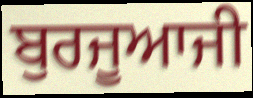
ਬੁਰਜੂਆਜੀ